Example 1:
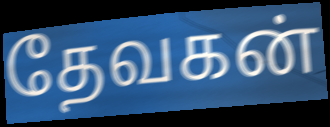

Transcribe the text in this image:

தேவகன்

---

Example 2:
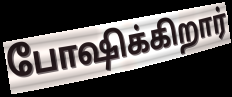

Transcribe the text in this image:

போஷிக்கிறார்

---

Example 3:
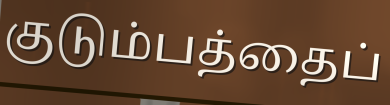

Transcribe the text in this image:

குடும்பத்தைப்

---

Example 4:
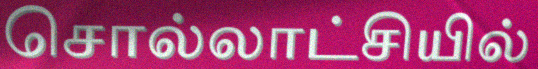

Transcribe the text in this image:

சொல்லாட்சியில்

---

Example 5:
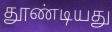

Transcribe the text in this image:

தூண்டியது